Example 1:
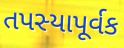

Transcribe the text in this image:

તપસ્યાપૂર્વક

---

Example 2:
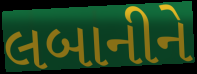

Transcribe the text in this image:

લબાનીને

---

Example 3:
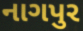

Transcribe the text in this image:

નાગપુર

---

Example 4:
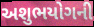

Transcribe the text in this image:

અશુભયોગની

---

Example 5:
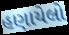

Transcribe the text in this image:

હણાયેલો